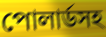
পোলার্ডসহ